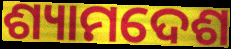
ଶ୍ୟାମଦେଶ